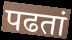
पढतां